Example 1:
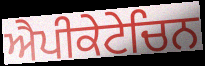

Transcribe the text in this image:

ਐਪੀਕੇਟੇਚਿਨ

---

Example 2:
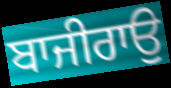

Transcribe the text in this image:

ਬਾਜੀਰਾਉ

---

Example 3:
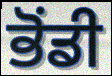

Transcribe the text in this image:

ਭੋਂਡੀ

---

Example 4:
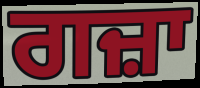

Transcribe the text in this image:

ਗਜ਼ਾ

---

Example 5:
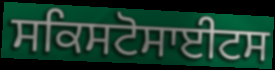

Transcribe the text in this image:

ਸਕਿਸਟੋਸਾਈਟਸ